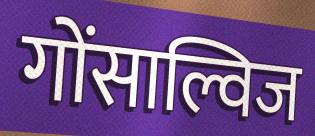
गोंसाल्विज